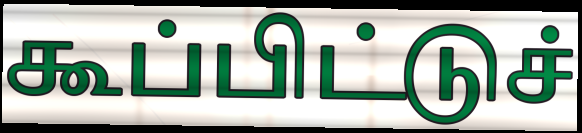
கூப்பிட்டுச்